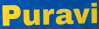
Puravi